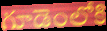
గూడెంలోకి